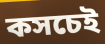
কসচেই